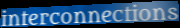
interconnections